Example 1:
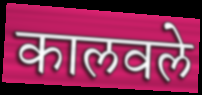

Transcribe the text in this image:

कालवले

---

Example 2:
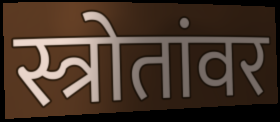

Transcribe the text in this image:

स्त्रोतांवर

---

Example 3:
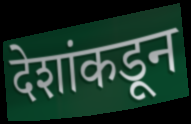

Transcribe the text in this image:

देशांकडून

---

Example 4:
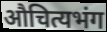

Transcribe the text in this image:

औचित्यभंग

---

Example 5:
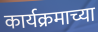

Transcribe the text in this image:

कार्यक्रमाच्या